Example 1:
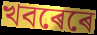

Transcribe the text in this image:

খবৰেৰে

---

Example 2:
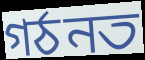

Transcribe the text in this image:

গঠনত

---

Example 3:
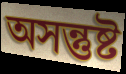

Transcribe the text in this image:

অসন্তুষ্ট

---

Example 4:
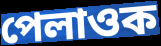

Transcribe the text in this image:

পেলাওক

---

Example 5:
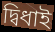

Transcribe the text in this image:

দ্বিধাই